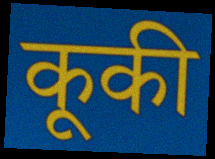
कूकी